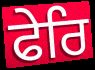
ਫੇਰਿ